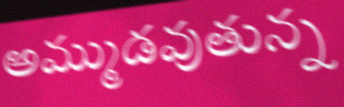
అమ్ముడవుతున్న